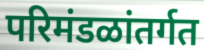
परिमंडळांतर्गत